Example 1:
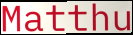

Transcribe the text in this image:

Matthu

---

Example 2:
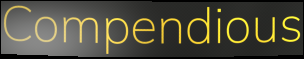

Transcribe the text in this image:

Compendious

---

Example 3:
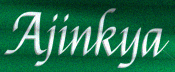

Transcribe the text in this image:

Ajinkya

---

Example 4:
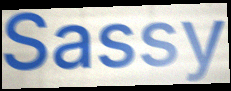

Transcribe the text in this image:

Sassy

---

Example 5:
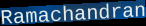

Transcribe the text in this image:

Ramachandran